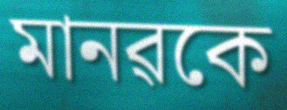
মানৱকে